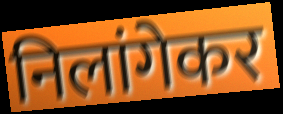
निलांगेकर